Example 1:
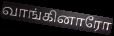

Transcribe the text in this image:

வாங்கினாரோ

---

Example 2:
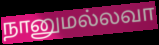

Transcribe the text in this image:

நானுமல்லவா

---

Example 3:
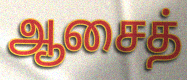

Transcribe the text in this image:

ஆசைத்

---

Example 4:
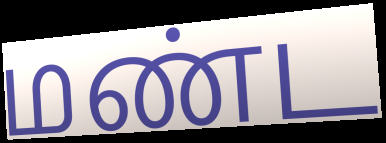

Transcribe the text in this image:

மண்ட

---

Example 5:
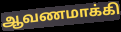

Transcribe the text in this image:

ஆவணமாக்கி